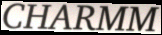
CHARMM